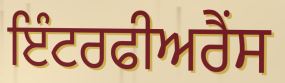
ਇੰਟਰਫੀਅਰੈਂਸ